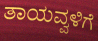
ತಾಯವ್ವಳಿಗೆ